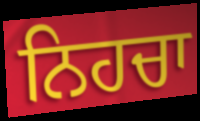
ਨਿਹਚਾ